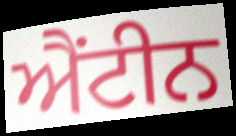
ਐਂਟੀਨ